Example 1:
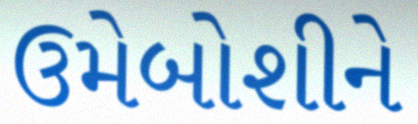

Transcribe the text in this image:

ઉમેબોશીને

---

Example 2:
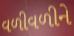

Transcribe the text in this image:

વળીવળીને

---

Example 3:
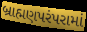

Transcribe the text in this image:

બ્રાહ્મણપરંપરામાં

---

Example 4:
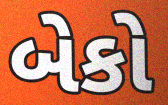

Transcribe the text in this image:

બેકો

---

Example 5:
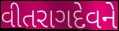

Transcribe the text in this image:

વીતરાગદેવને